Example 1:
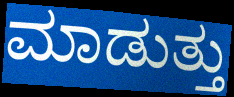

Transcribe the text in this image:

ಮಾಡುತ್ತು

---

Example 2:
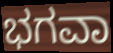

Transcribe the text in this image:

ಭಗವಾ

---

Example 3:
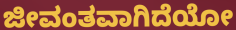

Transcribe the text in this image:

ಜೀವಂತವಾಗಿದೆಯೋ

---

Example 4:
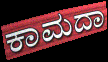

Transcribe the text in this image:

ಕಾಮದಾ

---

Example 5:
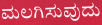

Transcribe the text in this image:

ಮಲಗಿಸುವುದು